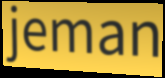
jeman